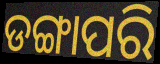
ଡଙ୍ଗାପରି